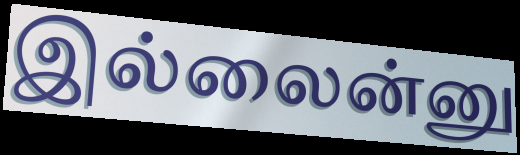
இல்லைன்னு